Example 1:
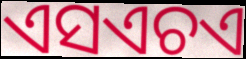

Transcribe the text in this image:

ଏସଏଚଏ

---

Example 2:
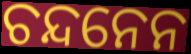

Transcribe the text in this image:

ଚନ୍ଦନେନ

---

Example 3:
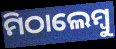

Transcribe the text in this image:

ମିଠାଲେମ୍ବୁ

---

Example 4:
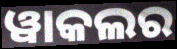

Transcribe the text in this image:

ୱାକଲର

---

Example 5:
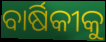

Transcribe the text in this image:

ବାର୍ଷିକୀକୁ